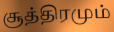
சூத்திரமும்